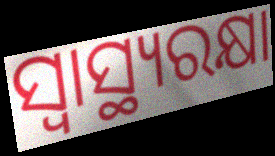
ସ୍ବାସ୍ଥ୍ୟରକ୍ଷା